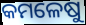
କମଳେଷୁ